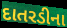
દાતરડીના